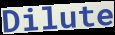
Dilute